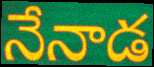
నేనాడ